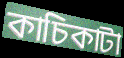
কাচিকাটা